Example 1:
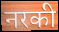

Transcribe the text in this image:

नरकी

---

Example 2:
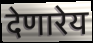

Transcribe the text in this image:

देणारेय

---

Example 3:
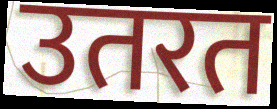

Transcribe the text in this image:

उतरत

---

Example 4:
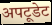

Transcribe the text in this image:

अपटूडेट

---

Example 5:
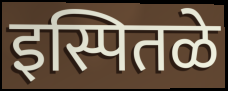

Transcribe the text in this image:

इस्पितळे